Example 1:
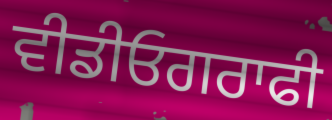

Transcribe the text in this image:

ਵੀਡੀਓਗਰਾਫੀ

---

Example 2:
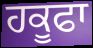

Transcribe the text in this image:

ਹਕੂਫਾ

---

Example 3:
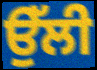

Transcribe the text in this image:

ਉੱਲੀ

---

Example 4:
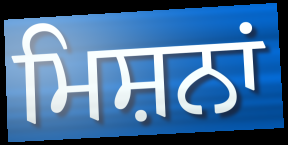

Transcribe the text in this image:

ਮਿਸ਼ਨਾਂ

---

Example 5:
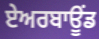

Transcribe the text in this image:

ਏਅਰਬਾਊਂਡ